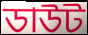
ডাউট